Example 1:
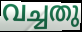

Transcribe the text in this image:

വച്ചതു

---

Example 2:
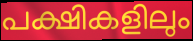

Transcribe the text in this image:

പക്ഷികളിലും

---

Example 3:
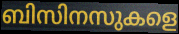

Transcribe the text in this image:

ബിസിനസുകളെ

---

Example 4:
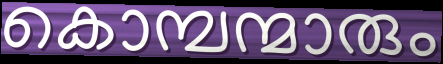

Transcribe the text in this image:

കൊമ്പന്മാരും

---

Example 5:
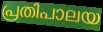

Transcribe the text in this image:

പ്രതിപാലയ